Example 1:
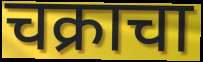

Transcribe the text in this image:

चक्राचा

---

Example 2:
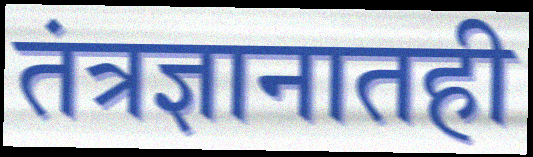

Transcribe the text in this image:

तंत्रज्ञानातही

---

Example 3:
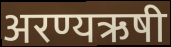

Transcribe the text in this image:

अरण्यऋषी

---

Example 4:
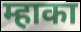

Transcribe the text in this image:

म्हाका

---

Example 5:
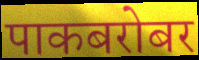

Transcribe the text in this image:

पाकबरोबर